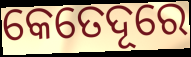
କେତେଦୂରେ